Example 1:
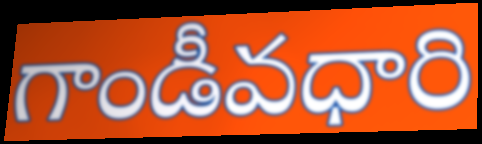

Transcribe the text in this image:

గాండీవధారి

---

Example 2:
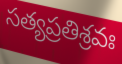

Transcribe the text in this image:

సత్యప్రతిశ్రవః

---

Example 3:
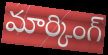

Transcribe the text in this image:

మార్కింగ్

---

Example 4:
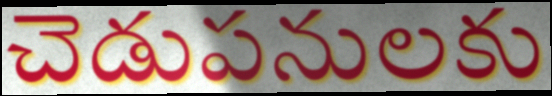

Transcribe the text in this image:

చెడుపనులకు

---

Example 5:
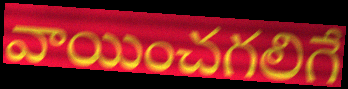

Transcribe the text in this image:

వాయించగలిగే